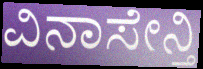
ವಿನಾಸೇನ್ತಿ